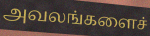
அவலங்களைச்